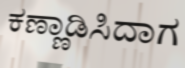
ಕಣ್ಣಾಡಿಸಿದಾಗ